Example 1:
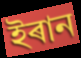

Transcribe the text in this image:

ইৰান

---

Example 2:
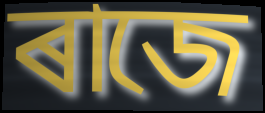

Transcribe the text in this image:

ৰাজে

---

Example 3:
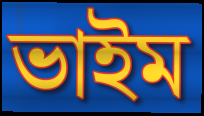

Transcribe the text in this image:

ভাইম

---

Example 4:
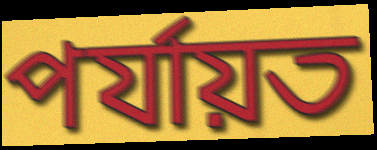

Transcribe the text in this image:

পৰ্যায়ত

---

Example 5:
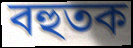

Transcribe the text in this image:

বহুতক